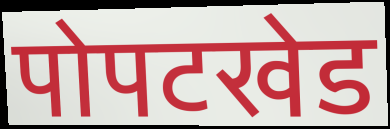
पोपटखेड